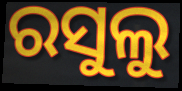
ରସୁଲୁ